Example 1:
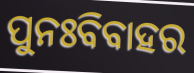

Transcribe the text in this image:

ପୁନଃବିବାହର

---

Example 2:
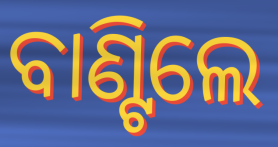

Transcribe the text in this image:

ବାଣ୍ଟିଲେ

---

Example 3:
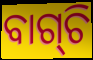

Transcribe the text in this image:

ବାଗ୍‌ଚି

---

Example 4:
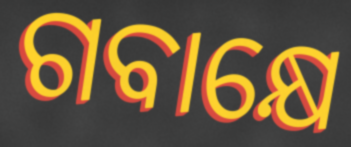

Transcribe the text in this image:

ଗବାକ୍ଷେ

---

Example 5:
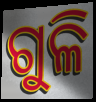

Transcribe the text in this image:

ଗୁଳି